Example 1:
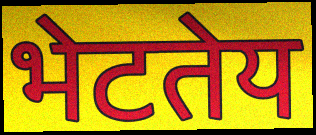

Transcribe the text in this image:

भेटतेय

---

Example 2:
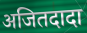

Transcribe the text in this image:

अजितदादा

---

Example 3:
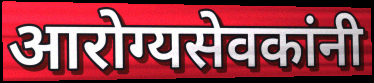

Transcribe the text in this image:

आरोग्यसेवकांनी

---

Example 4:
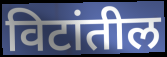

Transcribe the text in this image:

विटांतील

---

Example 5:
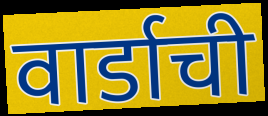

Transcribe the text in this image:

वार्डाची